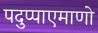
पदुप्पाएमाणो